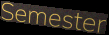
Semester